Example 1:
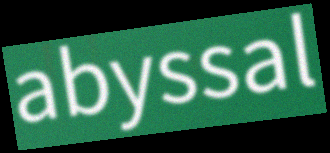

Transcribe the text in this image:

abyssal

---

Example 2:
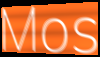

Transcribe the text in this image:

Mos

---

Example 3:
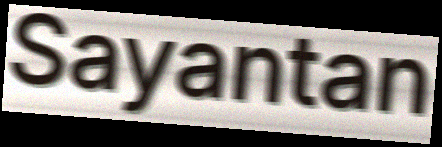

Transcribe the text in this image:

Sayantan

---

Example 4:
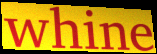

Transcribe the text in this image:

whine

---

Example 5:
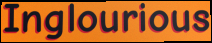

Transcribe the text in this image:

Inglourious